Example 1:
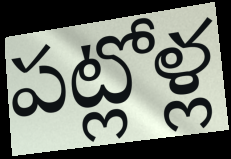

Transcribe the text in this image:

పట్లోళ్ల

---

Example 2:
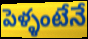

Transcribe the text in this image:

పెళ్ళంటేనే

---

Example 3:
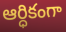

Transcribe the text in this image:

ఆర్ధికంగా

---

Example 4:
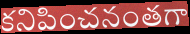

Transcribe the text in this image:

కనిపించనంతగా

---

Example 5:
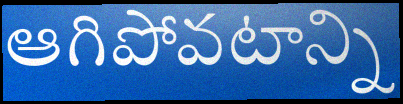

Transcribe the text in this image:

ఆగిపోవటాన్ని